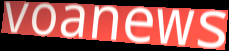
voanews